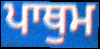
ਪਾਥੁਮ